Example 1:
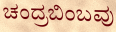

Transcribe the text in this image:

ಚಂದ್ರಬಿಂಬವು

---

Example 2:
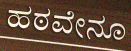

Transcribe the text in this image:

ಹಠವೇನೂ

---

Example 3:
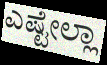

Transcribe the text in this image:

ಎಷ್ಟೇಲ್ಲಾ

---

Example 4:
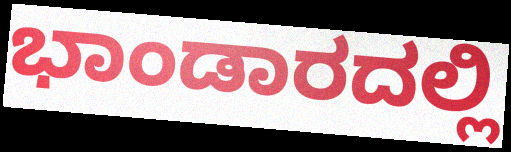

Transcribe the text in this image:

ಭಾಂಡಾರದಲ್ಲಿ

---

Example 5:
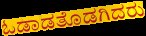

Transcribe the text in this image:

ಓಡಾಡತೊಡಗಿದರು